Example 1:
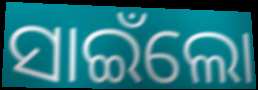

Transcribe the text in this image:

ସାଇଁଲୋ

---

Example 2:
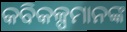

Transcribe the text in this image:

କବିକଳ୍ପମାନଙ୍କ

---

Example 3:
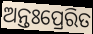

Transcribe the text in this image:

ଅନ୍ତଃପ୍ରେରିତ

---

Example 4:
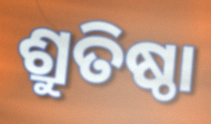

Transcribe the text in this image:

ଶ୍ରୁତିଷ୍ଠା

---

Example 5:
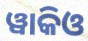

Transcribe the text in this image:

ୱାକିଓ